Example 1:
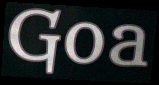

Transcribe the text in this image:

Goa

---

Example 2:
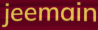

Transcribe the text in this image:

jeemain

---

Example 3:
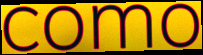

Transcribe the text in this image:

como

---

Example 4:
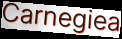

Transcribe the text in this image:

Carnegiea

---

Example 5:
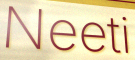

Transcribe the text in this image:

Neeti